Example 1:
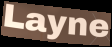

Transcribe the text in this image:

Layne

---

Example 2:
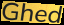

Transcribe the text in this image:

Ghed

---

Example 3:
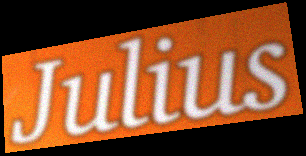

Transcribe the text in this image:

Julius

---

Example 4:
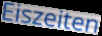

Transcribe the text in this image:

Eiszeiten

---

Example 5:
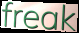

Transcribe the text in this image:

freak